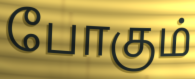
போகும்